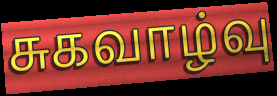
சுகவாழ்வு